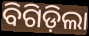
ବିଗିଡ଼ିଲା